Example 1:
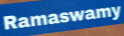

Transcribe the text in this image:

Ramaswamy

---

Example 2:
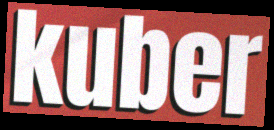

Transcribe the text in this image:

kuber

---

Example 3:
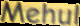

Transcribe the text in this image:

Mehul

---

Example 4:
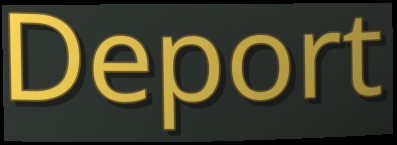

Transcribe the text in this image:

Deport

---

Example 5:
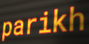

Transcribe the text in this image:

parikh